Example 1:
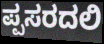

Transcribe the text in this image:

ಪ್ಪಸರದಲಿ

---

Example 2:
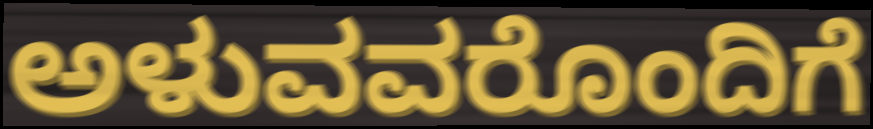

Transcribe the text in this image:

ಅಳುವವರೊಂದಿಗೆ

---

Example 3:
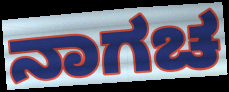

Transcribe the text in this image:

ನಾಗಚ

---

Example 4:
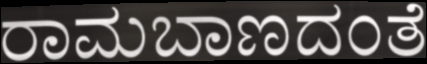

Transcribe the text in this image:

ರಾಮಬಾಣದಂತೆ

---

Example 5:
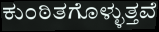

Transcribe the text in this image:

ಕುಂಠಿತಗೊಳ್ಳುತ್ತವೆ